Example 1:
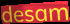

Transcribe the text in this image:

desam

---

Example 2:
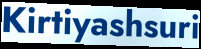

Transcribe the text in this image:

Kirtiyashsuri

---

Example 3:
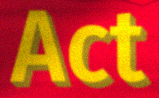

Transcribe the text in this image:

Act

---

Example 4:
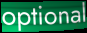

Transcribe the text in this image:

optional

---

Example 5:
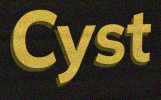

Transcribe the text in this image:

Cyst